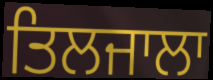
ਤਿਲਜਾਲਾ